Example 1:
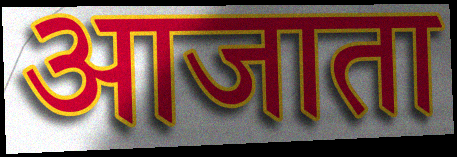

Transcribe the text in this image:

आजाता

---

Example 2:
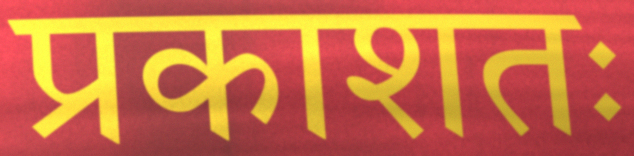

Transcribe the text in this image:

प्रकाशतः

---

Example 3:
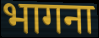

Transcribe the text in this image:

भागना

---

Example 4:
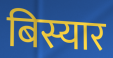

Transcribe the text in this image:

बिस्यार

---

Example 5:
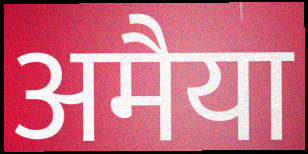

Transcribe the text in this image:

अमैया